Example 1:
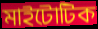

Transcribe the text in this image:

মাইটোটিক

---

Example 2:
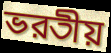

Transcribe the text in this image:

ভরতীয়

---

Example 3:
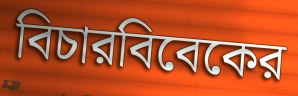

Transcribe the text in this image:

বিচারবিবেকের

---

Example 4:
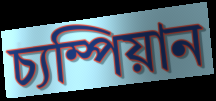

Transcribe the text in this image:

চ্যম্পিয়ান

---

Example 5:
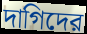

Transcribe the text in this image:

দাগিদের